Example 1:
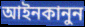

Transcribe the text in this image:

আইনকানুন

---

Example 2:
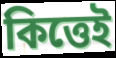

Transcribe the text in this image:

কিত্তেই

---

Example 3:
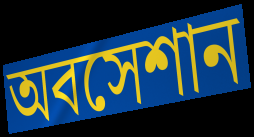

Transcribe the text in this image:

অবসেশান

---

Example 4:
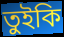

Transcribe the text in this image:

তুইকি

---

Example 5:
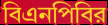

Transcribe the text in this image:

বিএনপিবির